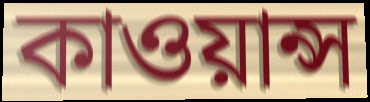
কাওয়ান্স